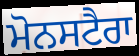
ਮੋਨਸਟੈਰਾ